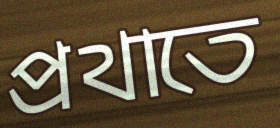
প্ৰথাতে